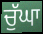
ਚੁੱਘਾ